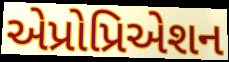
એપ્રોપ્રિએશન